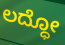
ಲದ್ಧೋ